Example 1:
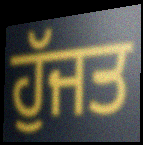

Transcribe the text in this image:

ਹੁੱਜਤ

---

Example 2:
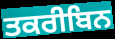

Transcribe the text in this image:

ਤਕਰੀਬਿਨ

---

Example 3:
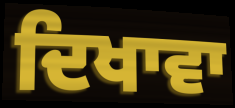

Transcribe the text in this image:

ਦਿਖਾਵਾ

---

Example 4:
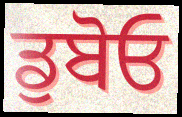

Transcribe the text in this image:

ਡੁਬੋਓ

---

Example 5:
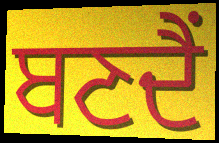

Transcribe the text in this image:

ਬਣਦੈਂ